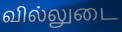
வில்லுடை